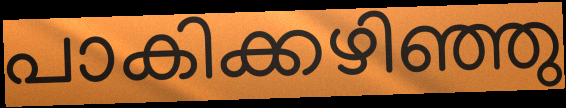
പാകിക്കഴിഞ്ഞു